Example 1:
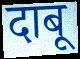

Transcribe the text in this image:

दाबू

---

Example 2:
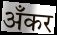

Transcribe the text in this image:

अँकर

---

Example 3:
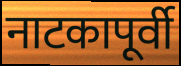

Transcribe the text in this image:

नाटकापूर्वी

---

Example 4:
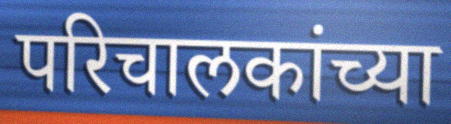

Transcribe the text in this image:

परिचालकांच्या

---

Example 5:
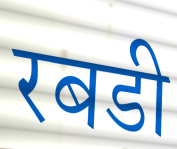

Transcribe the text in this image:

रबडी